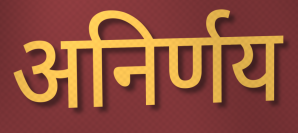
अनिर्णय